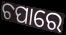
ଚପାରେ